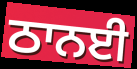
ਠਾਨਈ